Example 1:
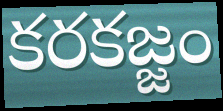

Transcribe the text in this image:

కరకజ్జం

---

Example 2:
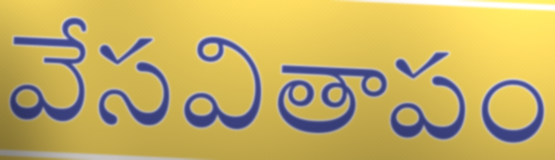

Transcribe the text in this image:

వేసవితాపం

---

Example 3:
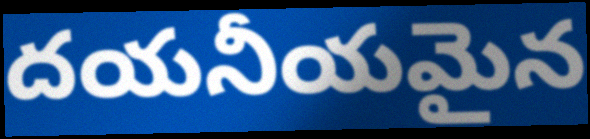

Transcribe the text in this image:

దయనీయమైన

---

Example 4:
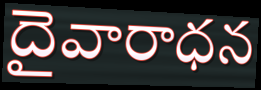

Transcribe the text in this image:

దైవారాధన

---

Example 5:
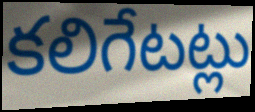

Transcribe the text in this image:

కలిగేటట్లు